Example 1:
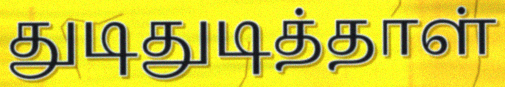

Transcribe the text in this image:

துடிதுடித்தாள்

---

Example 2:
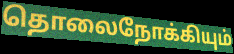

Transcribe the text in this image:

தொலைநோக்கியும்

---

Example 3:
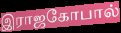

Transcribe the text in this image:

இராஜகோபால்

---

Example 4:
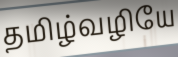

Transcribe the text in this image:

தமிழ்வழியே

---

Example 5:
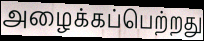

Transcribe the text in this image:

அழைக்கப்பெற்றது